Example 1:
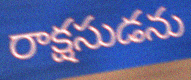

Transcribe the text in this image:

రాక్షసుడను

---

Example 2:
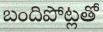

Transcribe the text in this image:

బందిపోట్లతో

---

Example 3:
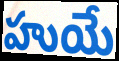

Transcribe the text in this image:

హుయే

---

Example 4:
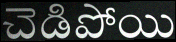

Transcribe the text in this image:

చెడిపోయి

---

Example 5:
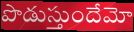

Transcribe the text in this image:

పొడుస్తుందేమో